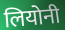
लियोनी